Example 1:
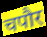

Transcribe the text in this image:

चपौर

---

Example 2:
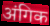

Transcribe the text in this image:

अंगिक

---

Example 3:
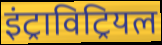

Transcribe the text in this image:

इंट्राविट्रियल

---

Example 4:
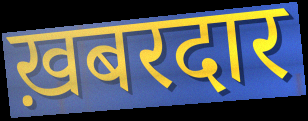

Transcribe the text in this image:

ख़बरदार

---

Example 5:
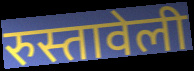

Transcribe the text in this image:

रुस्तावेली